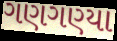
ગણગણ્યા